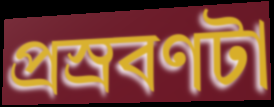
প্রস্রবণটা